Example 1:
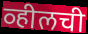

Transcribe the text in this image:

व्हीलची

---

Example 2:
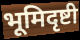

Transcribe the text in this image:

भूमिदृष्टी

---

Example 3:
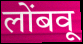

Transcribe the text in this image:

लोंबवू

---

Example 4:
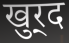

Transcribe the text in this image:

खुर्द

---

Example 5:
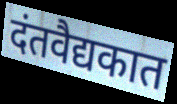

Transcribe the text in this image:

दंतवैद्यकात